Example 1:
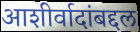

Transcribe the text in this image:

आशीर्वादांबद्दल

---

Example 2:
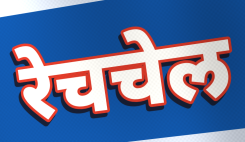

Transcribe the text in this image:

रेचचेल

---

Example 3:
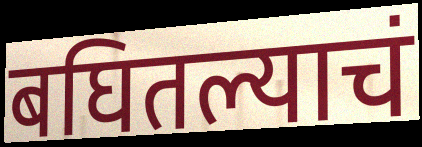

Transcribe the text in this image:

बघितल्याचं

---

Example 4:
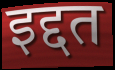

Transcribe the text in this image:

इद्दत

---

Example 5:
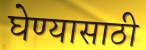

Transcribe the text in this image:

घेण्यासाठी